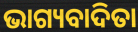
ଭାଗ୍ୟବାଦିତା